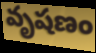
వృషణం